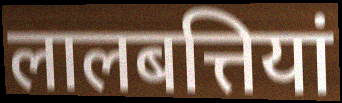
लालबत्तियां